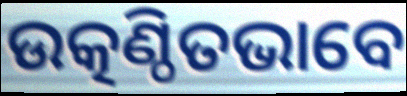
ଉତ୍କଣ୍ଠିତଭାବେ